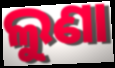
ଲୁଣା